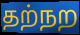
தற்நற